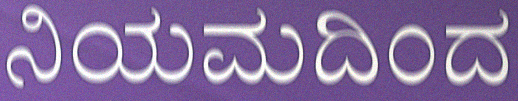
ನಿಯಮದಿಂದ